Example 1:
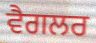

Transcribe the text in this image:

ਵੈਗਲਰ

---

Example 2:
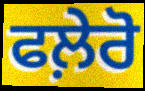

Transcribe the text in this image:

ਫਲ਼ੇਰੋ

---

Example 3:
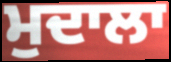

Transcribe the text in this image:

ਮੁਦਾਲਾ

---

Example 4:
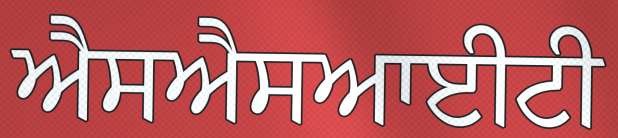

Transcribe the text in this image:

ਐਸਐਸਆਈਟੀ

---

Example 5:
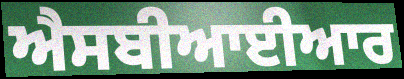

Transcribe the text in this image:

ਐਸਬੀਆਈਆਰ